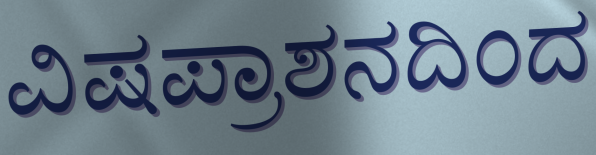
ವಿಷಪ್ರಾಶನದಿಂದ